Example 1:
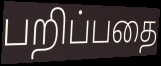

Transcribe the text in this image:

பறிப்பதை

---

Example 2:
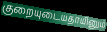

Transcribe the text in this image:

குறையுடையதாயினும்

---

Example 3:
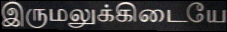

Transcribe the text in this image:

இருமலுக்கிடையே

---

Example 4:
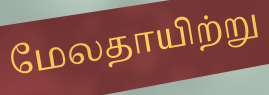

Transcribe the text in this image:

மேலதாயிற்று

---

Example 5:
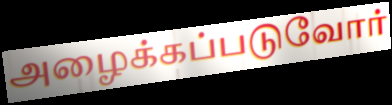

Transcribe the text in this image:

அழைக்கப்படுவோர்